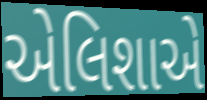
એલિશાએ